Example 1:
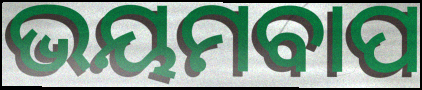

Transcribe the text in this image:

ଭୟମବାପ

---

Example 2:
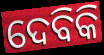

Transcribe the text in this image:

ଦେବିକି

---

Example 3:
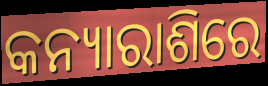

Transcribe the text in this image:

କନ୍ୟାରାଶିରେ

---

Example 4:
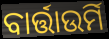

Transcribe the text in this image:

ବାର୍ତ୍ତାଉର୍ମି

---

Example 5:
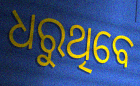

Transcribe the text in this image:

ଧରୁଥିବେ